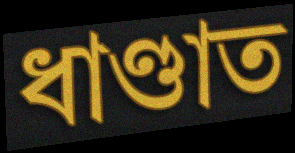
ধাণ্ডাত